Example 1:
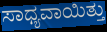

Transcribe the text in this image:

ಸಾಧ್ಯವಾಯಿತ್ತು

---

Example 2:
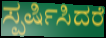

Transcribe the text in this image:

ಸ್ಪರ್ಷಿಸಿದರೆ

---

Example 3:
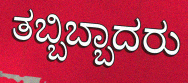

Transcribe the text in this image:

ತಬ್ಬಿಬ್ಬಾದರು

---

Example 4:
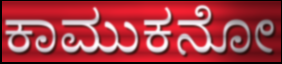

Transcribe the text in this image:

ಕಾಮುಕನೋ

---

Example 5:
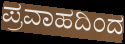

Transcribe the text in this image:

ಪ್ರವಾಹದಿಂದ